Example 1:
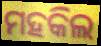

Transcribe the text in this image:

ମହକିଲ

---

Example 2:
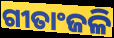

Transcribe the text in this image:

ଗୀତାଂଜଳି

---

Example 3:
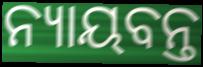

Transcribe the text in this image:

ନ୍ୟାୟବନ୍ତ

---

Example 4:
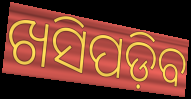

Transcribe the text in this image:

ଖସିପଡ଼ିବ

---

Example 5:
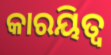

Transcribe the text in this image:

କାରୟିତ୍ୱ